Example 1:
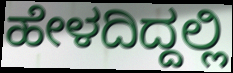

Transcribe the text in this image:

ಹೇಳದಿದ್ದಲ್ಲಿ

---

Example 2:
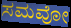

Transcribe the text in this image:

ಸಮವೋ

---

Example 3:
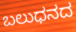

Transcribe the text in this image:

ಬಲುಧನದ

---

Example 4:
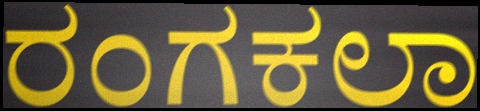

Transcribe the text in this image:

ರಂಗಕಲಾ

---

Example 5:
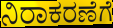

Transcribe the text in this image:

ನಿರಾಕರಣೆಗೆ